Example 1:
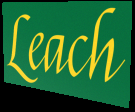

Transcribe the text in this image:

Leach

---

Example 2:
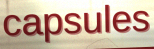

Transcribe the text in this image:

capsules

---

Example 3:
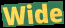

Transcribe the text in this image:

Wide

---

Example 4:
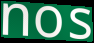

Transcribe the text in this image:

nos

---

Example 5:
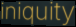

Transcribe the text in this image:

iniquity